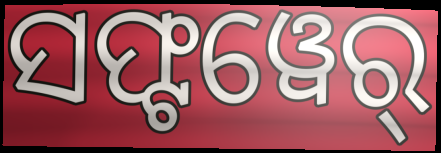
ସଫ୍ଟୱେର୍